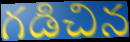
గడిచిన